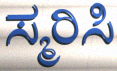
ಸ್ಮರಿಸಿ